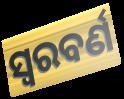
ସ୍ଵରବର୍ଣ